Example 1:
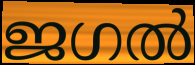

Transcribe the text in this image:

ജഗൽ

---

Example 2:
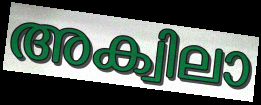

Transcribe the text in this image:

അക്വിലാ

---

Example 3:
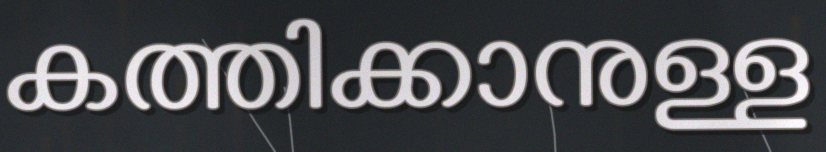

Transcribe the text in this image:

കത്തിക്കാനുള്ള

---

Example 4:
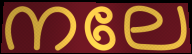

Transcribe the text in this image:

നലേ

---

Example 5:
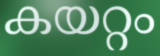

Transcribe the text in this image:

കയറ്റം